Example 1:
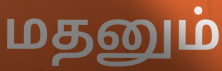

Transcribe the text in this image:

மதனும்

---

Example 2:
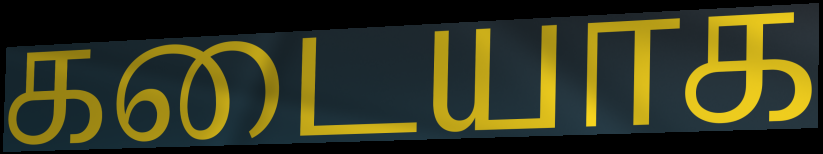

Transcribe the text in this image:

கடையாக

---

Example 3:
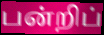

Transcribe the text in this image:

பன்றிப்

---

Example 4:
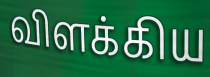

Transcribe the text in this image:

விளக்கிய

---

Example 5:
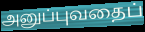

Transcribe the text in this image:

அனுப்புவதைப்